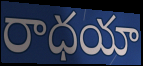
రాధయా